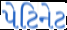
પેટિનેટ